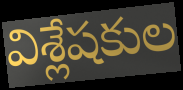
విశ్లేషకుల